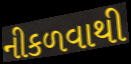
નીકળવાથી